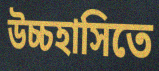
উচ্চহাসিতে